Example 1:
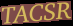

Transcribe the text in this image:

TACSR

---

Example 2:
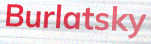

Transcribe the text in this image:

Burlatsky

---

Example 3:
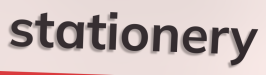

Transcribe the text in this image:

stationery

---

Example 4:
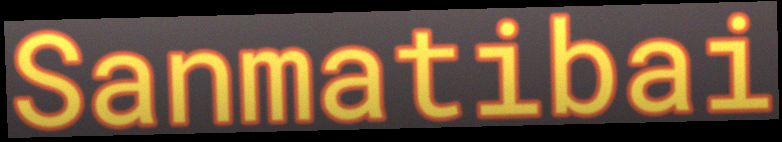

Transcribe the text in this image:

Sanmatibai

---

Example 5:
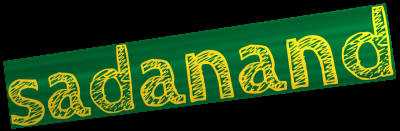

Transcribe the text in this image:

sadanand